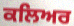
ਕਲਿਅਰ